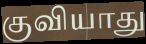
குவியாது